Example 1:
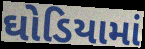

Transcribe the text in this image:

ઘોડિયામાં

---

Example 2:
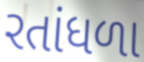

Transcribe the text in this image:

રતાંધળા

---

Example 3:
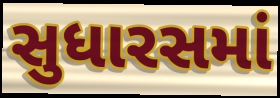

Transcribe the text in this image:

સુધારસમાં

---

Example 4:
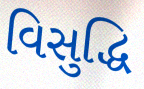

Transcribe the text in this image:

વિસુદ્ધિ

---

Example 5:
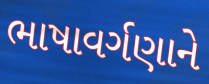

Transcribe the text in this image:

ભાષાવર્ગણાને